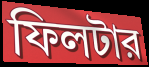
ফিলটার